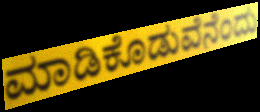
ಮಾಡಿಕೊಡುವೆನೆಂದು